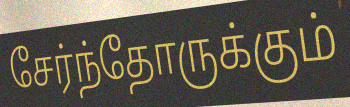
சேர்ந்தோருக்கும்